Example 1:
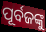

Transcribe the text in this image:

ପୂର୍ବଜଙ୍କୁ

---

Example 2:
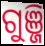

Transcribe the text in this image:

ଗୁଞ୍ଜି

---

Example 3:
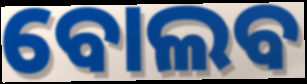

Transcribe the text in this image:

ବୋଲବ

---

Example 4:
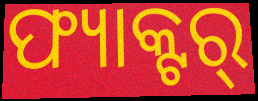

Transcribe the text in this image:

ଫ୍ୟାକ୍ଟର୍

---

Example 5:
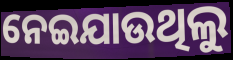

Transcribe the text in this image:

ନେଇଯାଉଥିଲୁ